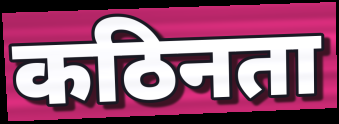
कठिनता